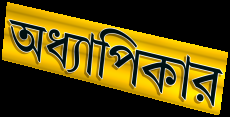
অধ্যাপিকার